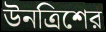
উনত্রিশের